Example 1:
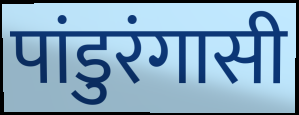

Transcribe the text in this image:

पांडुरंगासी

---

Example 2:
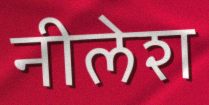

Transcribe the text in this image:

नीलेश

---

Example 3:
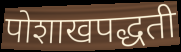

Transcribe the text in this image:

पोशाखपद्धती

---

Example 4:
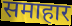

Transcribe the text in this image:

समाहार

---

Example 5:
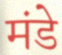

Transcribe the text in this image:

मंडे